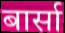
बार्सा